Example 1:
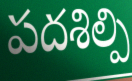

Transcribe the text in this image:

పదశిల్పి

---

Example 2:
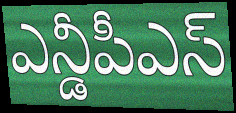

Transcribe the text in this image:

ఎన్డీపీఎస్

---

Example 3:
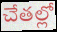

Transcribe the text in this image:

చేతల్లో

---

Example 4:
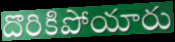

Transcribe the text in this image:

దొరికిపోయారు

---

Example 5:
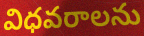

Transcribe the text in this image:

విధవరాలను